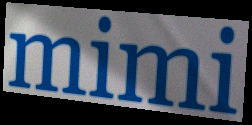
mimi